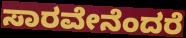
ಸಾರವೇನೆಂದರೆ